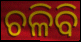
ଚଳିବି